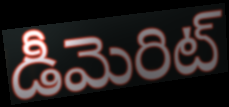
డీమెరిట్